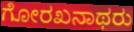
ಗೋರಖನಾಥರು